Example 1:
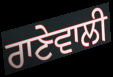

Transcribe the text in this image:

ਰਾਣੇਵਾਲੀ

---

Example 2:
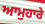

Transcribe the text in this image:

ਆਮੁਹਾਰੇ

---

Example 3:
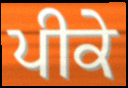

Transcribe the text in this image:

ਪੀਕੇ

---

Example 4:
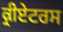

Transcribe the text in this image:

ਕ੍ਰੀਏਟਰਸ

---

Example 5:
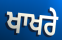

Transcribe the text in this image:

ਖਾਖਰੇ